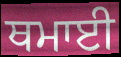
ਥਮਾਈ